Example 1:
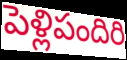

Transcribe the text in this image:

పెళ్లిపందిరి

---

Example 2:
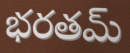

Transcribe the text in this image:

భరతమ్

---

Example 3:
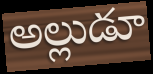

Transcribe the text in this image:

అల్లుడూ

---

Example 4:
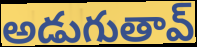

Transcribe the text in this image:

అడుగుతావ్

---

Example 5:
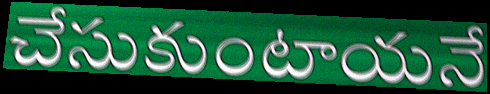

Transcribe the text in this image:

చేసుకుంటాయనే